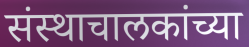
संस्थाचालकांच्या